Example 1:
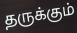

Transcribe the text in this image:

தருக்கும்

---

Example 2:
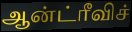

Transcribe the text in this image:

ஆன்ட்ரீவிச்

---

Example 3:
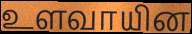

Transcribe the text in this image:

உளவாயின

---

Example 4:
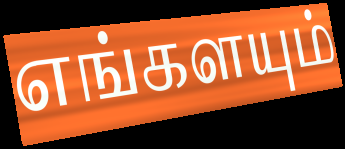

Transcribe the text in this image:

எங்களயும்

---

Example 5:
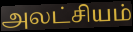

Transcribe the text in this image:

அலட்சியம்